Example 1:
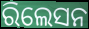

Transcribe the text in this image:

ରିଲେସନ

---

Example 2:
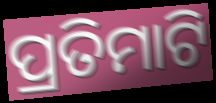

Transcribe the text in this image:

ପ୍ରତିମାଟି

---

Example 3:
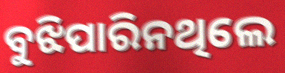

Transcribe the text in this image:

ବୁଝିପାରିନଥିଲେ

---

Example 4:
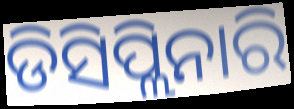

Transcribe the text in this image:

ଡିସିପ୍ଲିନାରି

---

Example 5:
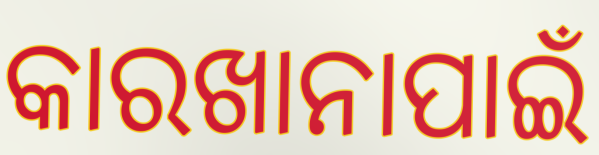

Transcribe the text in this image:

କାରଖାନାପାଇଁ